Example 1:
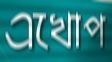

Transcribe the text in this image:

এখোপ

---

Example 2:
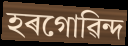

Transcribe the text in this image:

হৰগোৱিন্দ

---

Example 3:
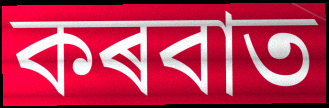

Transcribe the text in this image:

কৰবাত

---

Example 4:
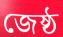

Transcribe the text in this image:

জেষ্ঠ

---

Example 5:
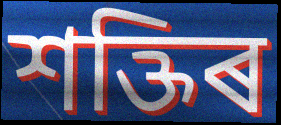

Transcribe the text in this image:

শক্তিৰ